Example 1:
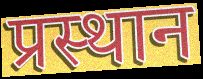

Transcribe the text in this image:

प्रस्थान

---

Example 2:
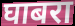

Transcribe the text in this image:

घाबरा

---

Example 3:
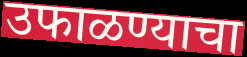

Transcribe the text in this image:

उफाळण्याचा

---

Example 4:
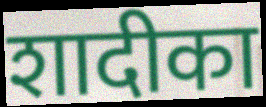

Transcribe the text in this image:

शादीका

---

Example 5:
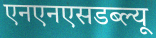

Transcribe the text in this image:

एनएनएसडब्ल्यू